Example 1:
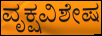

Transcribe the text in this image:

ವೃಕ್ಷವಿಶೇಷ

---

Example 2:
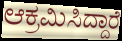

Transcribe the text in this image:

ಆಕ್ರಮಿಸಿದ್ದಾರೆ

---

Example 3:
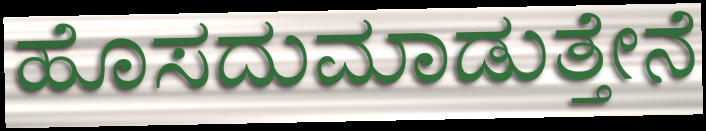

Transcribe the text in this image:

ಹೊಸದುಮಾಡುತ್ತೇನೆ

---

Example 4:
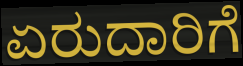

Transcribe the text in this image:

ಏರುದಾರಿಗೆ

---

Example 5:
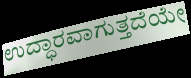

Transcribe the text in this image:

ಉದ್ಧಾರವಾಗುತ್ತದೆಯೇ